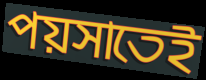
পয়সাতেই